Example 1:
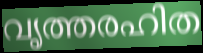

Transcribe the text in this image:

വൃത്തരഹിത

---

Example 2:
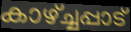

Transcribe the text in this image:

കാഴ്ച്ചപ്പാട്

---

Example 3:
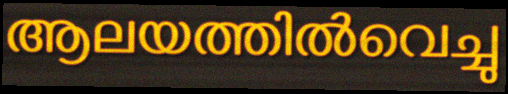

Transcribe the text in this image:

ആലയത്തിൽവെച്ചു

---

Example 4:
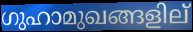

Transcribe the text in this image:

ഗുഹാമുഖങ്ങളില്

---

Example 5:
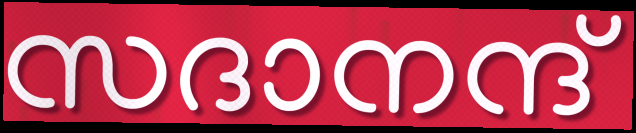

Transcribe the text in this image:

സദാനന്ദ്